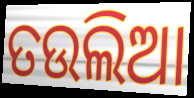
ତଉଲିଆ